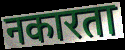
नकारता